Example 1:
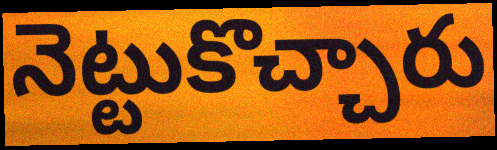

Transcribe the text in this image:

నెట్టుకొచ్చారు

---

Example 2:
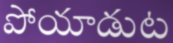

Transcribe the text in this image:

పోయాడుట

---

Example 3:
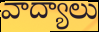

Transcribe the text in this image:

వాద్యాలు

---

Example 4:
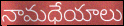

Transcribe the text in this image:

నామధేయాలు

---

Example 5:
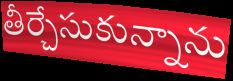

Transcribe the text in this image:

తీర్చేసుకున్నాను